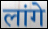
लांगे